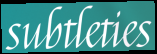
subtleties